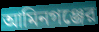
আমিনগঞ্জের